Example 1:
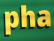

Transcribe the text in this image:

pha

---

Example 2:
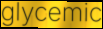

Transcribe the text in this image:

glycemic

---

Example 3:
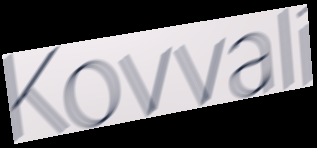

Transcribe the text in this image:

Kovvali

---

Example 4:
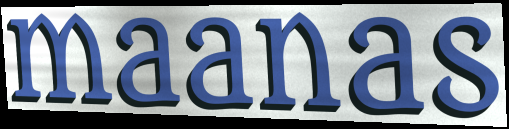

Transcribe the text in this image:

maanas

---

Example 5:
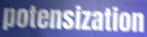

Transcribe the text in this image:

potensization